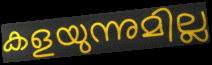
കളയുന്നുമില്ല